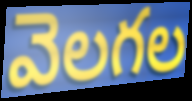
వెలగల